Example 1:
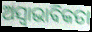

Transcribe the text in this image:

ଅସ୍ୱାଭାବିକତା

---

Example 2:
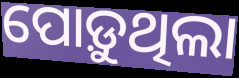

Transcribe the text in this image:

ପୋଡ଼ୁଥିଲା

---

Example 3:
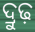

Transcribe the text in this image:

ଦ୍ରୁଢ଼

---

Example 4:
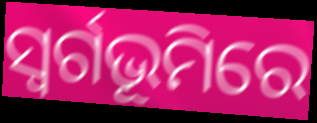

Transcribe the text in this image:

ସ୍ଵର୍ଗଭୂମିରେ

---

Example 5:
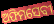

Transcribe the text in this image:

ଅଫିମସେବୀ